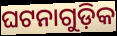
ଘଟନାଗୁଡ଼ିକ